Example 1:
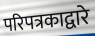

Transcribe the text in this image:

परिपत्रकाद्वारे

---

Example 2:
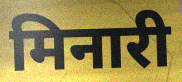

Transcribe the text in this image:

मिनारी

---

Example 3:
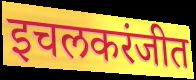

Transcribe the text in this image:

इचलकरंजीत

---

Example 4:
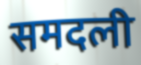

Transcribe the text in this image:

समदली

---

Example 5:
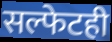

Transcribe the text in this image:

सल्फेटही